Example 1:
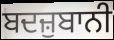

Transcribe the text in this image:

ਬਦਜ਼ੁਬਾਨੀ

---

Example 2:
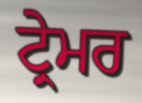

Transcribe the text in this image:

ਟ੍ਰੇਮਰ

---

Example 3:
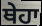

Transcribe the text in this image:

ਥੇਹਾ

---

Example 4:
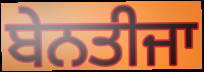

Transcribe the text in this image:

ਬੇਨਤੀਜਾ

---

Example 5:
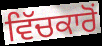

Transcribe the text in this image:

ਵਿੱਚਕਾਰੋਂ